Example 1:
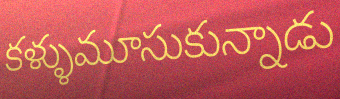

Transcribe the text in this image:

కళ్ళుమూసుకున్నాడు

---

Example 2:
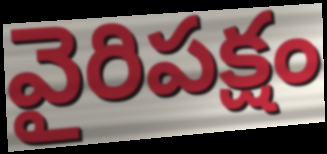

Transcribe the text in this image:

వైరిపక్షం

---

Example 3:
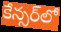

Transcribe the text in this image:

కేన్సర్‌లో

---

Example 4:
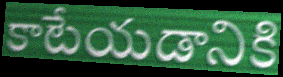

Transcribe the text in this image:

కాటేయడానికి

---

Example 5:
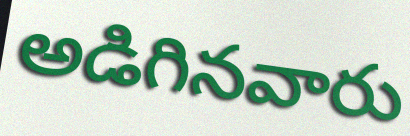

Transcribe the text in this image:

అడిగినవారు